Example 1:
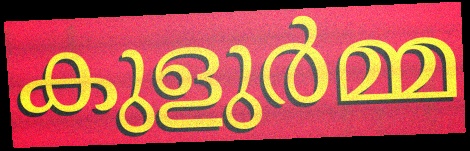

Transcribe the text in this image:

കുളുർമ്മ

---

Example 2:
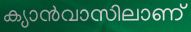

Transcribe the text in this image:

ക്യാൻവാസിലാണ്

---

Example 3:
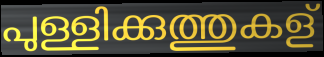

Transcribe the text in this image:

പുള്ളിക്കുത്തുകള്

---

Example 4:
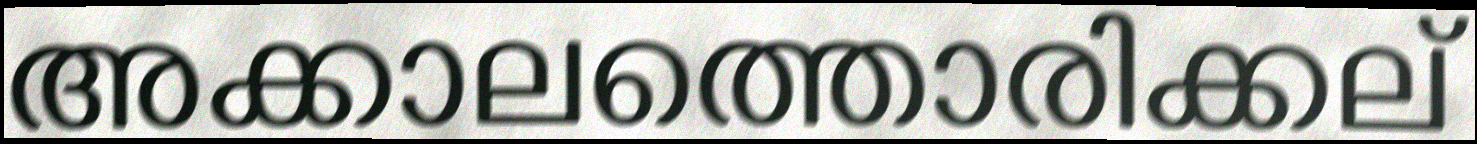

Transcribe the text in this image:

അക്കാലത്തൊരിക്കല്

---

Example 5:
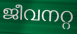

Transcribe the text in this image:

ജീവനറ്റ